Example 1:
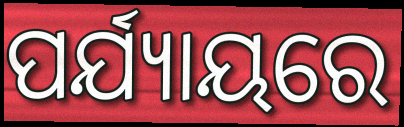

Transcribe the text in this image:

ପର୍ଯ୍ୟାୟରେ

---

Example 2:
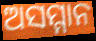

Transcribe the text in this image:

ଅସମ୍ମାନ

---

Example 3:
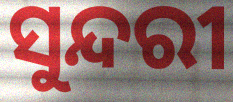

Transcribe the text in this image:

ସୁନ୍ଦରୀ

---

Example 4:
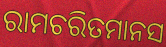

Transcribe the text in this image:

ରାମଚରିତମାନସ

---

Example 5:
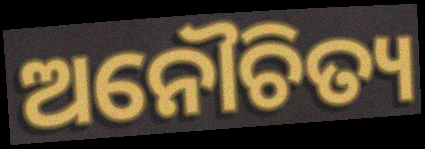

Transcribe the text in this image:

ଅନୌଚିତ୍ୟ